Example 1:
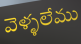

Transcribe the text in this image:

వెళ్ళలేము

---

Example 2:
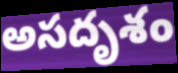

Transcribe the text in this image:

అసదృశం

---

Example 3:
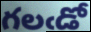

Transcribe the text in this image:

గలఁడో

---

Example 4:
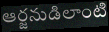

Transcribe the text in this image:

ఆర్జనుడిలాంటి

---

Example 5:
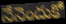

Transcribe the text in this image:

నేనెందుకో